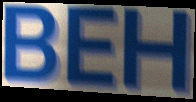
BEH